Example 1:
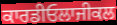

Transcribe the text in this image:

ਕਾਰਡੀਓਲਾਜੀਕਲ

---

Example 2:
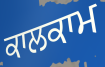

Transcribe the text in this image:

ਕਾਲਕਾਮ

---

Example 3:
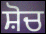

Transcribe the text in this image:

ਸ਼ੋਚ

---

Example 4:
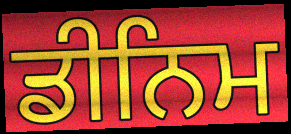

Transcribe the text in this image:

ਡੀਨਿਮ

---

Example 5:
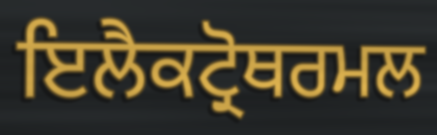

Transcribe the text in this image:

ਇਲੈਕਟ੍ਰੋਥਰਮਲ